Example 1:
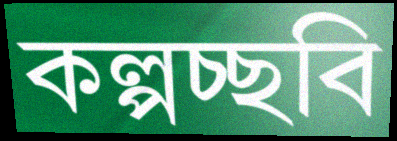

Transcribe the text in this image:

কল্পচ্ছবি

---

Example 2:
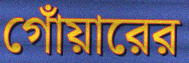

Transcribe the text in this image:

গোঁয়ারের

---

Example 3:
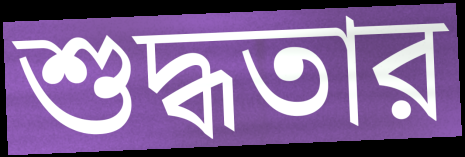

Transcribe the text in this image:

শুদ্ধতার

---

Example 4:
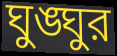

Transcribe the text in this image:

ঘুঙ্ঘুর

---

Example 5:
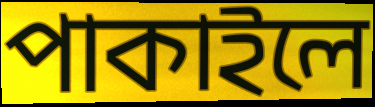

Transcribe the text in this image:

পাকাইলে